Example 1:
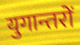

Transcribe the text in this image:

युगान्तरों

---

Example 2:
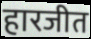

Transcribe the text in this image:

हारजीत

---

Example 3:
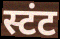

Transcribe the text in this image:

स्टंट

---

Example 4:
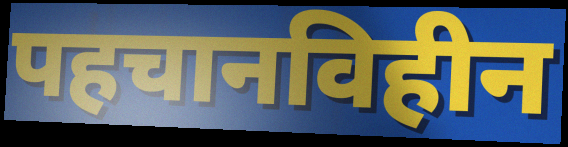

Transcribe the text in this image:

पहचानविहीन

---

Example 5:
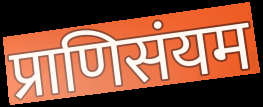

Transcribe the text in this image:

प्राणिसंयम